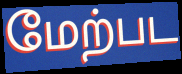
மேற்பட